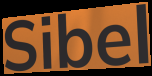
Sibel